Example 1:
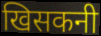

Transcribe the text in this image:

खिसकनी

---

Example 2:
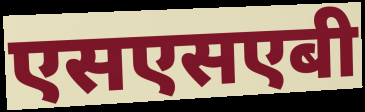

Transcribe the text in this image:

एसएसएबी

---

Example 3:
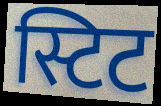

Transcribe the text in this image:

स्टिट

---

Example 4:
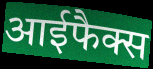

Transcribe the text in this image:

आईफैक्स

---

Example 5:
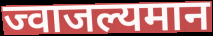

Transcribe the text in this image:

ज्वाजल्यमान